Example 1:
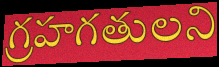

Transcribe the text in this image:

గ్రహగతులని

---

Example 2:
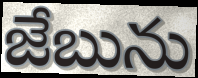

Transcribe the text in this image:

జేబును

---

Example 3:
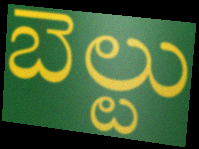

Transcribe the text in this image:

బెల్టు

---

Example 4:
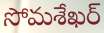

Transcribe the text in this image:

సోమశేఖర్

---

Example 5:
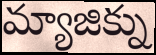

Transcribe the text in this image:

మ్యాజిక్ను